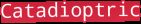
Catadioptric